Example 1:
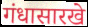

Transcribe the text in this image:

गंधासारखे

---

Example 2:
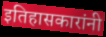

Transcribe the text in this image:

इतिहासकारांनी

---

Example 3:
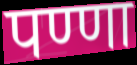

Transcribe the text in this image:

पण्णा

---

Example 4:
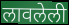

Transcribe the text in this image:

लावलेली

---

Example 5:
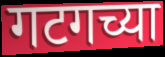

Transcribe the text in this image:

गटगच्या